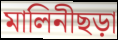
মালিনীছড়া